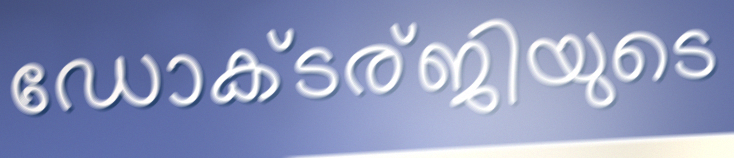
ഡോക്ടര്ജിയുടെ